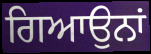
ਗਿਆਉਨਾਂ